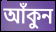
আঁকুন